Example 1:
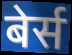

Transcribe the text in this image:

बेर्स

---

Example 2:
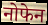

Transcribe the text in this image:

नोफेन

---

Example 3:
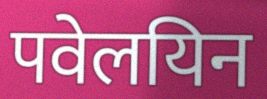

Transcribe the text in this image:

पवेलयिन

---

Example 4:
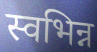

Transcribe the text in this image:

स्वभिन्न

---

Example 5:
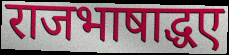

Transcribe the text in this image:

राजभाषाद्धए